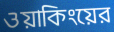
ওয়াকিংয়ের